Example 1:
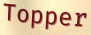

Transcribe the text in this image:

Topper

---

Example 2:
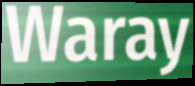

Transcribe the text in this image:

Waray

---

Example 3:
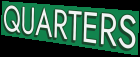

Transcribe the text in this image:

QUARTERS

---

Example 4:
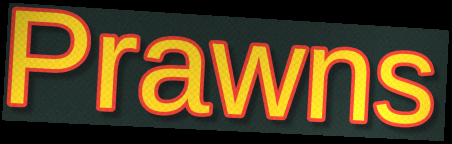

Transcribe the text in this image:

Prawns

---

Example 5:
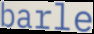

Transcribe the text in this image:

barle